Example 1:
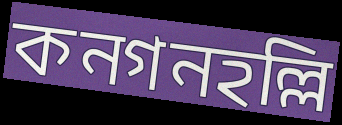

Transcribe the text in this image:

কনগনহল্লি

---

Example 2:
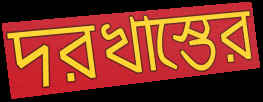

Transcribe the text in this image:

দরখাস্তের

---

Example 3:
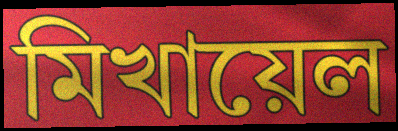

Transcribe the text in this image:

মিখায়েল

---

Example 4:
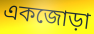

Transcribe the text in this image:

একজোড়া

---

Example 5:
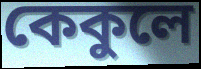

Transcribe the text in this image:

কেকুলে